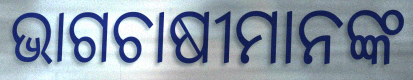
ଭାଗଚାଷୀମାନଙ୍କ